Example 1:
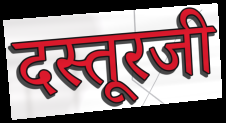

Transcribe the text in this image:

दस्तूरजी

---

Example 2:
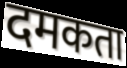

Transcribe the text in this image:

दमकता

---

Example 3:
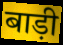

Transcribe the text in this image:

बाड़ी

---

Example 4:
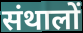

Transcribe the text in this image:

संथालों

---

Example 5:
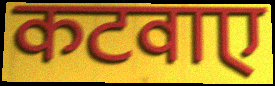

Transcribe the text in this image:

कटवाए